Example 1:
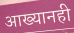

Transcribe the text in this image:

आख्यानही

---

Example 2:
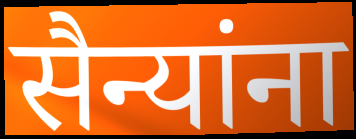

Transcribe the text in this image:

सैन्यांना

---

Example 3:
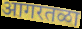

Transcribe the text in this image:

आगरतळा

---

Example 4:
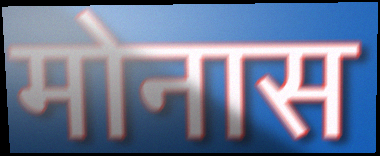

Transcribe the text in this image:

मोनास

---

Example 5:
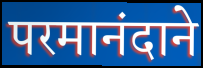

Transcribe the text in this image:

परमानंदाने